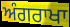
ਅੰਗਰਾਖਾ